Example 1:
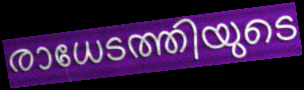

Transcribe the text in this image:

രാധേടത്തിയുടെ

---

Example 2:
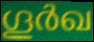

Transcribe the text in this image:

ഗൂർഖ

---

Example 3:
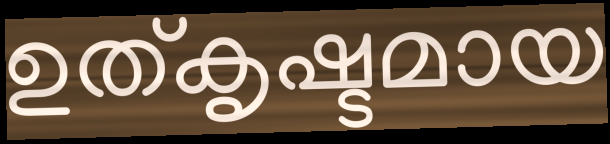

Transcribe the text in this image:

ഉത്കൃഷ്ടമായ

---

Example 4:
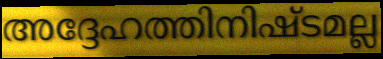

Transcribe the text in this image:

അദ്ദേഹത്തിനിഷ്ടമല്ല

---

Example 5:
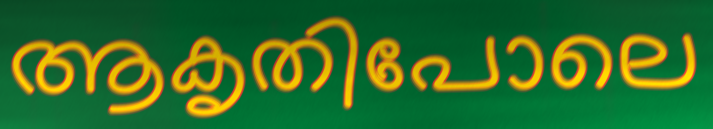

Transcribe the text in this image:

ആകൃതിപോലെ